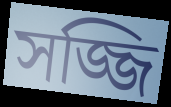
সজ্জি